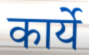
कार्ये